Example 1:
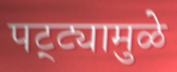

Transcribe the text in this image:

पट्ट्यामुळे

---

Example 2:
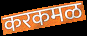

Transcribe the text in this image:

करकमळ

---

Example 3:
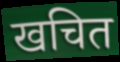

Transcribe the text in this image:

खचित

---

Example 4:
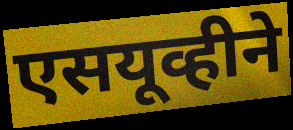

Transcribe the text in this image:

एसयूव्हीने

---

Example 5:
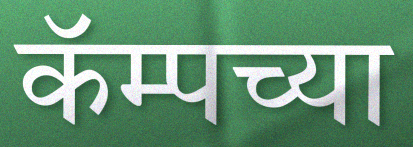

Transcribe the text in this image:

कॅम्पच्या